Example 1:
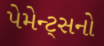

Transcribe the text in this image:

પેમેન્ટ્સનો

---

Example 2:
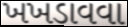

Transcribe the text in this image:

ખખડાવવા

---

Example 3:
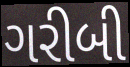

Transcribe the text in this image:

ગરીબી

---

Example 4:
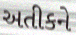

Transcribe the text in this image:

અતીકને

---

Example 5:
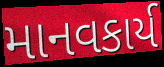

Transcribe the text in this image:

માનવકાર્ય